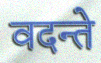
वदन्ते